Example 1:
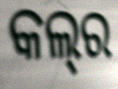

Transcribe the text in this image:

କଲ୍‌ର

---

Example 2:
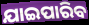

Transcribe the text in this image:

ଯାଇପାରିବ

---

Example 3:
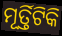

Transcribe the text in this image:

ମୂର୍ତ୍ତିଟିକି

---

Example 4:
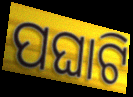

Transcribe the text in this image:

ପଘାଟି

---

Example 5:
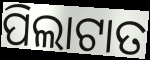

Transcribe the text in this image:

ପିଲାଟାତ